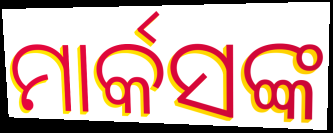
ମାର୍କସଙ୍କ